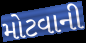
મોટવાની